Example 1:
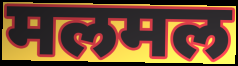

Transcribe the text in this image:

मलमल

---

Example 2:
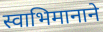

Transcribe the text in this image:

स्वाभिमानाने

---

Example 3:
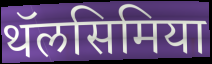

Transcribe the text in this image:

थॅलसिमिया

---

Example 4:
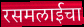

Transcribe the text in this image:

रसमलाईचा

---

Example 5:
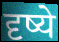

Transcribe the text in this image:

दृष्ये